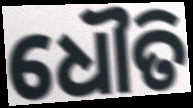
ଧୌତି